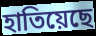
হাতিয়েছে